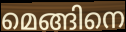
മെങ്ങിനെ